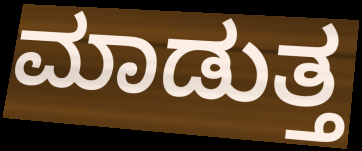
ಮಾಡುತ್ತ